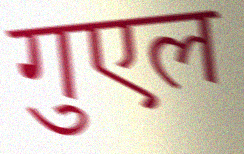
गुएल